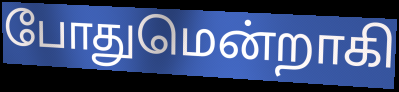
போதுமென்றாகி